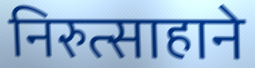
निरुत्साहाने